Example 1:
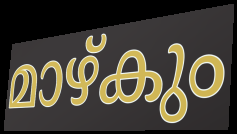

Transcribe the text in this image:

മാഴ്കും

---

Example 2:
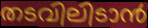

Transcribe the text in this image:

തടവിലിടാൻ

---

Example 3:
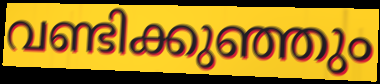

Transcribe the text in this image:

വണ്ടിക്കുഞ്ഞും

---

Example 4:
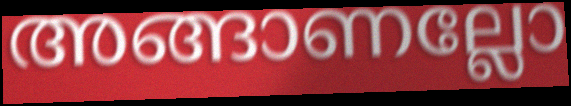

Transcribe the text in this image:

അങ്ങാണല്ലോ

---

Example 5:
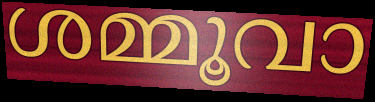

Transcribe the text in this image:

ശമ്മൂവാ